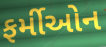
ફર્મીઓન